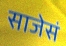
साजेसं